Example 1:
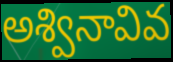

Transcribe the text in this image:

అశ్వినావివ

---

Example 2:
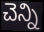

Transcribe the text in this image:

చెన్ని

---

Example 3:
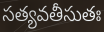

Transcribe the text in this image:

సత్యవతీసుతః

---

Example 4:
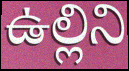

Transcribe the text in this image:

ఉల్లిని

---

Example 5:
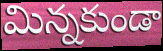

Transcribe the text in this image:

మిన్నకుండా